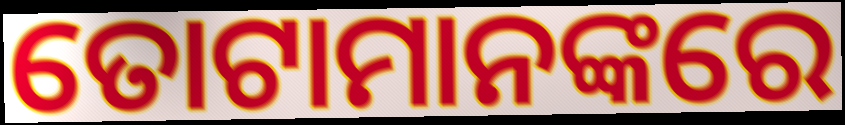
ତୋଟାମାନଙ୍କରେ